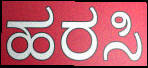
ಹರಸಿ